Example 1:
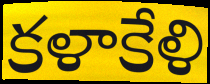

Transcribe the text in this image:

కళాకేళి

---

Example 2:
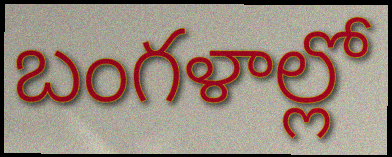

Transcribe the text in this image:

బంగళాల్లో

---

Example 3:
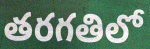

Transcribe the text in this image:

తరగతిలో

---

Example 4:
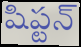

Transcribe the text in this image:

షిప్టన్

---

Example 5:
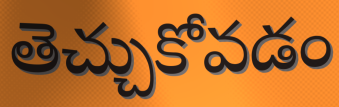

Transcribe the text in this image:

తెచ్చుకోవడం